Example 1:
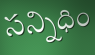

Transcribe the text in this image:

సన్నిధిం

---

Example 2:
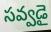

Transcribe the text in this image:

సవ్వడై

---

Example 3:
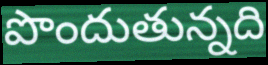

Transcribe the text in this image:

పొందుతున్నది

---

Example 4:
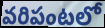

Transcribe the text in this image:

వరిపంటలో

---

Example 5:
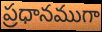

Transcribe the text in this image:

ప్రధానముగా